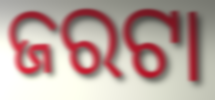
ଜରଟା